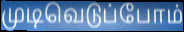
முடிவெடுப்போம்